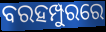
ବରହମ୍ପୁରରେ